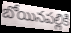
బోయినపల్లికి